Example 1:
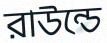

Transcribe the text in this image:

রাউন্ডে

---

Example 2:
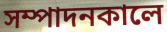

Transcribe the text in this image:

সম্পাদনকালে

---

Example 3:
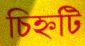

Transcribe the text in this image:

চিহ্নটি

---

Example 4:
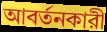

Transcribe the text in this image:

আবর্তনকারী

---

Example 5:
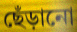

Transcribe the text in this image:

ছেঁড়ানো